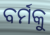
ବର୍ମକୁ